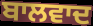
ਬਾਲਵਾਦ